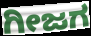
ಗೀಜಗ